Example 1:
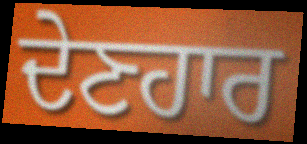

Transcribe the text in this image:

ਦੇਣਹਾਰ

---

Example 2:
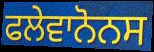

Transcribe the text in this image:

ਫਲੇਵਾਨੋਨਸ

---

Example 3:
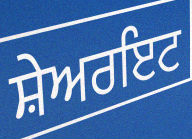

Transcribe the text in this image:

ਸ਼ੇਅਰਇਟ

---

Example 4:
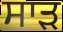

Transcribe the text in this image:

ਸਾਡ਼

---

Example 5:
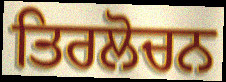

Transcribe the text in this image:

ਤਿਰਲੋਚਨ